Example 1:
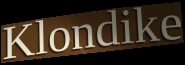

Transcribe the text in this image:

Klondike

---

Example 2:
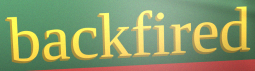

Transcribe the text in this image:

backfired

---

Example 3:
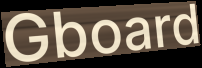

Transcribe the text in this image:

Gboard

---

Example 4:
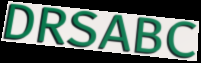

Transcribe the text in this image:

DRSABC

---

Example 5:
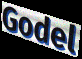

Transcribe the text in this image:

Godel